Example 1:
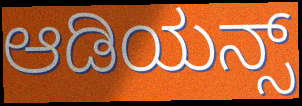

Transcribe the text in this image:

ಆಡಿಯನ್ಸ್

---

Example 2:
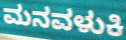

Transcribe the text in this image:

ಮನವಳುಕಿ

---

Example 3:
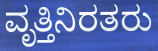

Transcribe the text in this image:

ವೃತ್ತಿನಿರತರು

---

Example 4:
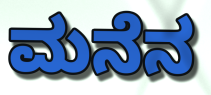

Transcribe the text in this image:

ಮನೆನ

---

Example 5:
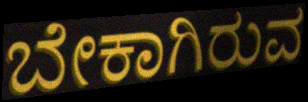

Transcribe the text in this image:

ಬೇಕಾಗಿರುವ